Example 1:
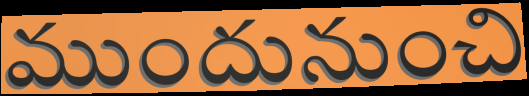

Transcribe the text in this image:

ముందునుంచి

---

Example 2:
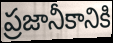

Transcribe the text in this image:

ప్రజానీకానికి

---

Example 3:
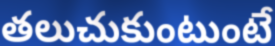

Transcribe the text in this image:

తలుచుకుంటుంటే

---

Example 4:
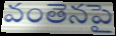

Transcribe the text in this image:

వంతెనపై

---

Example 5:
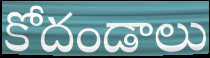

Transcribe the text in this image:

కోదండాలు